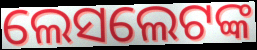
ଲେସଲେଟଙ୍କ